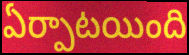
ఏర్పాటయింది